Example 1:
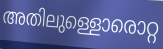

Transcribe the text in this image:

അതിലുള്ളൊരൊറ്റ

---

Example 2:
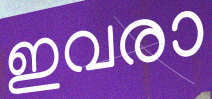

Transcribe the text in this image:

ഇവരാ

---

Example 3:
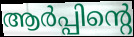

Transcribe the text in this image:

ആർപ്പിന്റെ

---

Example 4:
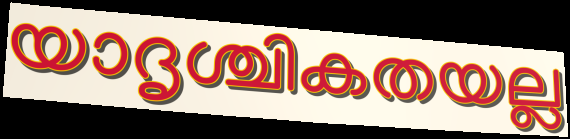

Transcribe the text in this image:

യാദൃശ്ചികതയല്ല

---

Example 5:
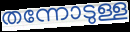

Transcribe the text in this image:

തന്നോടുള്ള